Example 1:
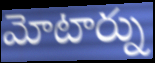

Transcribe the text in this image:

మోటార్ను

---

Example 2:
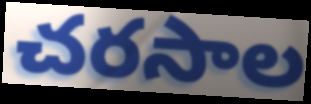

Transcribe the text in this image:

చరసాల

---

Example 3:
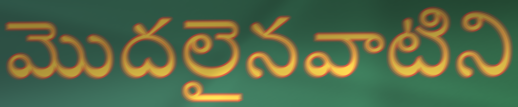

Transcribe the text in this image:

మొదలైనవాటిని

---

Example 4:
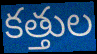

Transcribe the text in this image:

కత్తుల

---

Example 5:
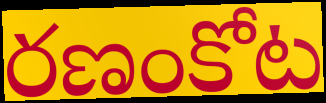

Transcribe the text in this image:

రణంకోట